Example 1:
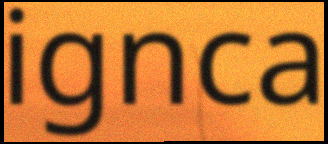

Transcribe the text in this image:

ignca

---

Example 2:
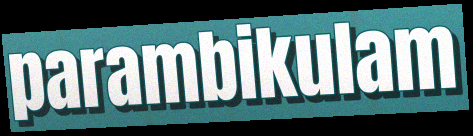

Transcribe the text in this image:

parambikulam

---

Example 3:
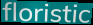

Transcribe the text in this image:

floristic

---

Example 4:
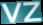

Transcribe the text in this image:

vz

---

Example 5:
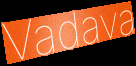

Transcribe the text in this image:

Vadava